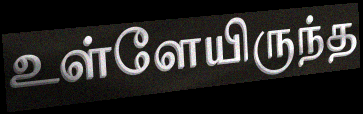
உள்ளேயிருந்த